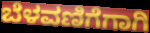
ಬೆಳವಣಿಗೆಗಾಗಿ